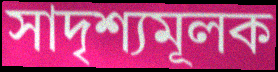
সাদৃশ্যমূলক